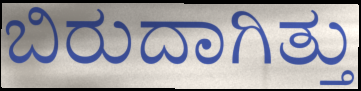
ಬಿರುದಾಗಿತ್ತು